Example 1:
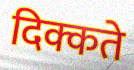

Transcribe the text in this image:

दिक्कते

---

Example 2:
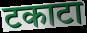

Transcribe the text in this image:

टकाटा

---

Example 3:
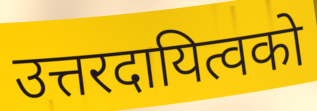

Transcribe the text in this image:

उत्तरदायित्वको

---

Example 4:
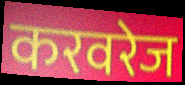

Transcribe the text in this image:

करवरेज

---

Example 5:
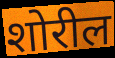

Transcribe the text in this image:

शोरील